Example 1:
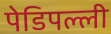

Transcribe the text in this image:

पेडिपल्ली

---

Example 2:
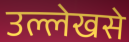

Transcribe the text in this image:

उल्लेखसे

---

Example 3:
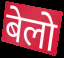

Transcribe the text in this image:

बेलो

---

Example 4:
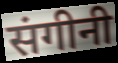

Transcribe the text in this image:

संगीनी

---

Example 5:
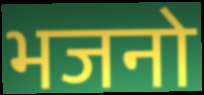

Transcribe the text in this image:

भजनो